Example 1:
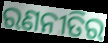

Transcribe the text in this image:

ରଣନୀତିର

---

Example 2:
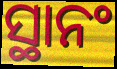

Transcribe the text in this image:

ସ୍ଥାନଂ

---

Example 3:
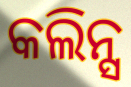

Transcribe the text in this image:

କଲିନ୍ସ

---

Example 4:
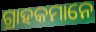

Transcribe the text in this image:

ଗ୍ରାହକମାନେ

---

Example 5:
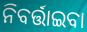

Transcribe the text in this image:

ନିବର୍ତ୍ତାଇବା